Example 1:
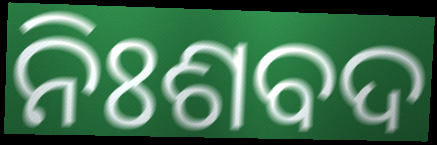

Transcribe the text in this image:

ନିଃଶବଦ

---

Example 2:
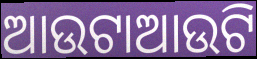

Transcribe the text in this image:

ଆଉଟାଆଉଟି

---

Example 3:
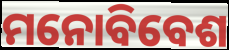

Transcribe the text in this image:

ମନୋବିବେଶ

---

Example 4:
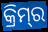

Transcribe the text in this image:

କ୍ରିମ୍‌ର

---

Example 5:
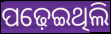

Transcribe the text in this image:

ପଢ଼େଇଥିଲି